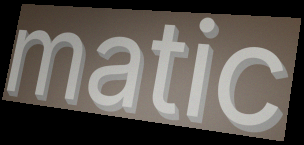
matic